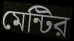
মেন্টির